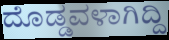
ದೊಡ್ಡವಳಾಗಿದ್ದಿ